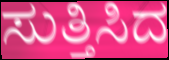
ಸುತ್ತಿಸಿದ